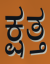
ಕ್ಷತ್ತ